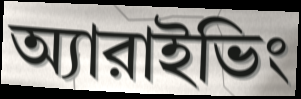
অ্যারাইভিং